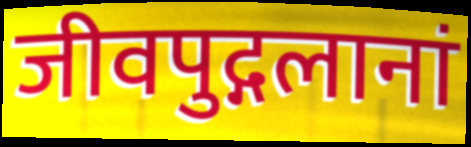
जीवपुद्गलानां